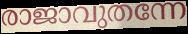
രാജാവുതന്നേ